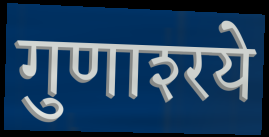
गुणाश्रये